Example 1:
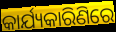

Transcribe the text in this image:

କାର୍ଯ୍ୟକାରିଣିରେ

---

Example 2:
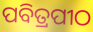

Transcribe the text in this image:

ପବିତ୍ରପୀଠ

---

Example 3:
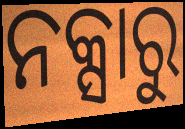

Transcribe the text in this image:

ନକ୍ସାରୁ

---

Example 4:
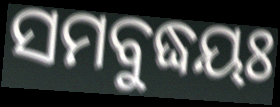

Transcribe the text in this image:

ସମବୁଦ୍ଧୟଃ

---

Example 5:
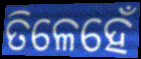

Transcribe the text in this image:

ତିଳେହେଁ